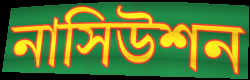
নাসিউশন